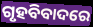
ଗୃହବିବାଦରେ